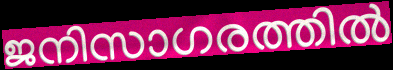
ജനിസാഗരത്തിൽ